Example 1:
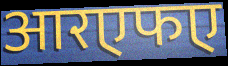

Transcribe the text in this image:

आरएफए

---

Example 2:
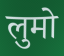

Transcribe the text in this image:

लुमो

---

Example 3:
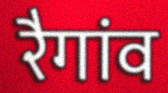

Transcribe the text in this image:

रैगांव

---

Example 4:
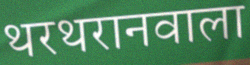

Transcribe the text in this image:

थरथरानवाला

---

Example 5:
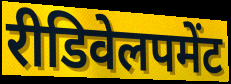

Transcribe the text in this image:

रीडिवेलपमेंट